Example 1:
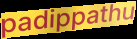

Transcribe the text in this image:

padippathu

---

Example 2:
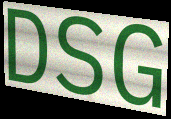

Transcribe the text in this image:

DSG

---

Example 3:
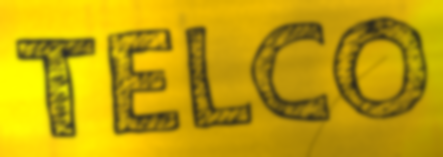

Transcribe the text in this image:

TELCO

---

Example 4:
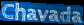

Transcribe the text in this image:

Chavada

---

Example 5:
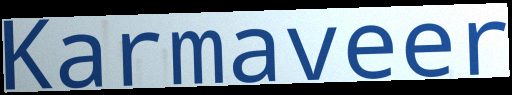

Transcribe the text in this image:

Karmaveer